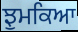
ਝੁਮਕਿਆ